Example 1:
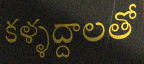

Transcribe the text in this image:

కళ్ళద్దాలతో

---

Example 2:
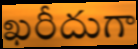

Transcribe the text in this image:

ఖరీదుగా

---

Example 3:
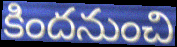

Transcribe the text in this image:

కిందనుంచి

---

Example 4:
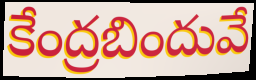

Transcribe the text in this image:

కేంద్రబిందువే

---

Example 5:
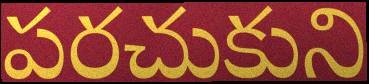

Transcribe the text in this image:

పరచుకుని